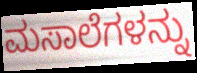
ಮಸಾಲೆಗಳನ್ನು